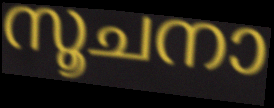
സൂചനാ